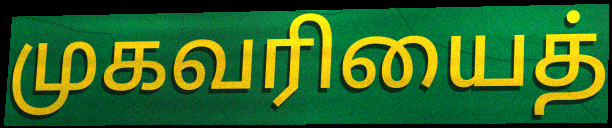
முகவரியைத்